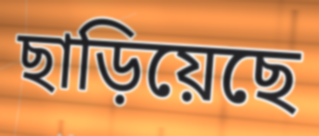
ছাড়িয়েছে